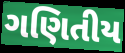
ગણિતીય